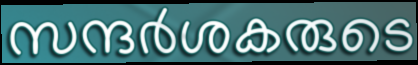
സന്ദർശകരുടെ